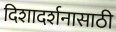
दिशादर्शनासाठी